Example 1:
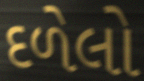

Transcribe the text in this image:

દળેલો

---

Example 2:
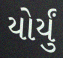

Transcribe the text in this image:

યોર્યું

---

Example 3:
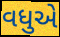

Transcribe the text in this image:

વધુએ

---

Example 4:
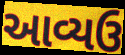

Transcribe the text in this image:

આવ્યઉ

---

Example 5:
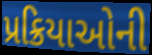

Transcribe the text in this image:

પ્રક્રિયાઓની